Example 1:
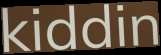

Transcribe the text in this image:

kiddin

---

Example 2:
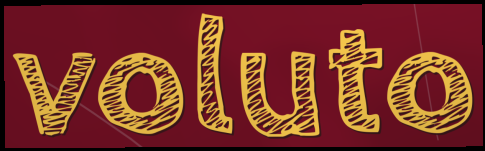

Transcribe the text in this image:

voluto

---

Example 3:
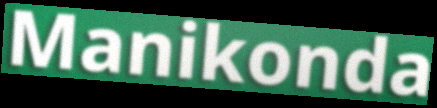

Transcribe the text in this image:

Manikonda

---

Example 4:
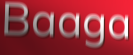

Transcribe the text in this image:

Baaga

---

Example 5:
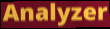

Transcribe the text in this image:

Analyzer